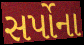
સર્પોના